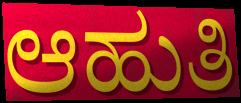
ಆಹುತಿ